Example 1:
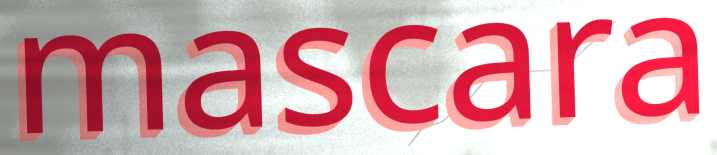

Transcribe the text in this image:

mascara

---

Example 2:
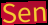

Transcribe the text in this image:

Sen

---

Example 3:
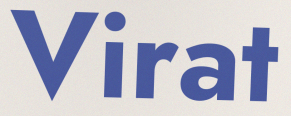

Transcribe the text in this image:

Virat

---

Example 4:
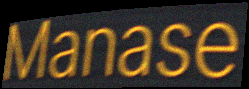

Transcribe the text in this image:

Manase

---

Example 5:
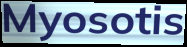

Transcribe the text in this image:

Myosotis